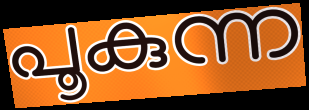
പൂകുന്ന